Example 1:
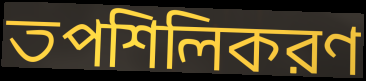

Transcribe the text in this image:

তপশিলিকরণ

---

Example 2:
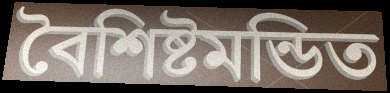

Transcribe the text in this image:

বৈশিষ্টমন্ডিত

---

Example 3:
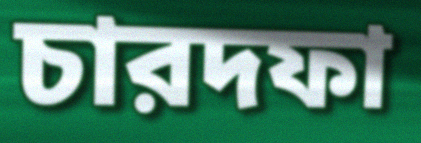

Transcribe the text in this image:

চারদফা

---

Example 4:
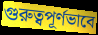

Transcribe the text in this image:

গুরুত্বপূর্ণভাবে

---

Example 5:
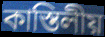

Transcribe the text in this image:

কাস্তিলীয়